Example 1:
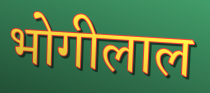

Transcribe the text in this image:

भोगीलाल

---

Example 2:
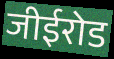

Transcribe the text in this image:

जीईरोड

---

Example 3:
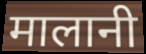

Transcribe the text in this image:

मालानी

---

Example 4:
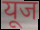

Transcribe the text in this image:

यूज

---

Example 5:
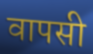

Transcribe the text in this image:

वापसी